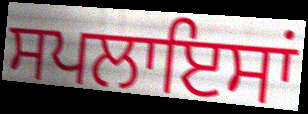
ਸਪਲਾਇਸਾਂ